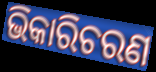
ଭିକାରିଚରଣ